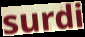
surdi